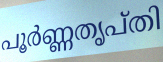
പൂർണ്ണതൃപ്തി